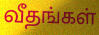
வீதங்கள்